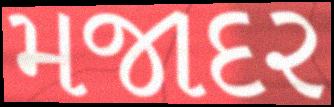
મજાદર